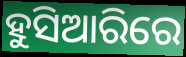
ହୁସିଆରିରେ